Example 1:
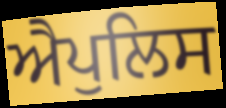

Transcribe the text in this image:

ਐਪੁਲਿਸ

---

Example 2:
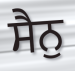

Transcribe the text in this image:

ਸੈਨੁ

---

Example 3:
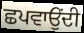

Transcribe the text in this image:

ਛਪਵਾਉਂਦੀ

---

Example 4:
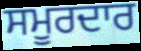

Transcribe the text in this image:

ਸਮੂਰਦਾਰ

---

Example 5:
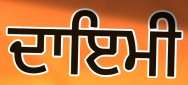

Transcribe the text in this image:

ਦਾਇਮੀ